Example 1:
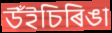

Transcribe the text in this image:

উঁইচিৰিঙা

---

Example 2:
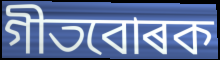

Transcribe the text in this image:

গীতবোৰক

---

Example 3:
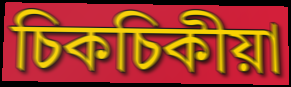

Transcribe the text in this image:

চিকচিকীয়া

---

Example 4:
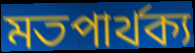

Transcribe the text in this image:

মতপাৰ্থক্য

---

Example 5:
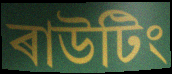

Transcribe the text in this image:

ৰাউটিং